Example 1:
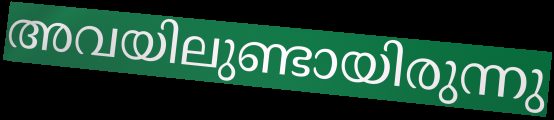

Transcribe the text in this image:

അവയിലുണ്ടായിരുന്നു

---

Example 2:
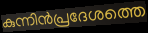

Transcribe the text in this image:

കുന്നിൻപ്രദേശത്തെ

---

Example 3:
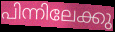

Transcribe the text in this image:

പിന്നിലേക്കു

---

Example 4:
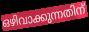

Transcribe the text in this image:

ഒഴിവാക്കുന്നതിന്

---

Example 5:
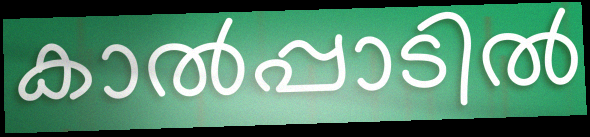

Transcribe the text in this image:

കാൽപ്പാടിൽ